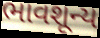
ભાવશૂન્ય